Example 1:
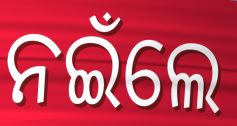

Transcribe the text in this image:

ନଇଁଲେ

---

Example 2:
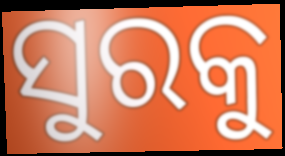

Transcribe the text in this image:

ସୁରକୁ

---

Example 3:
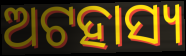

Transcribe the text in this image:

ଅଟହାସ୍ୟ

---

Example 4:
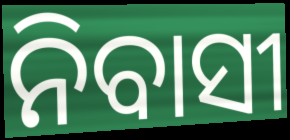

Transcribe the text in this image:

ନିବାସୀ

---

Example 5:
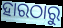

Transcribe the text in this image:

ହାରଠାରୁ